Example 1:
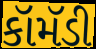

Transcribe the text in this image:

કૉમૅડી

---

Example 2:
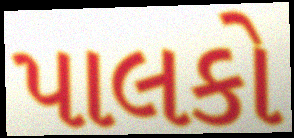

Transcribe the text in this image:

પાલકો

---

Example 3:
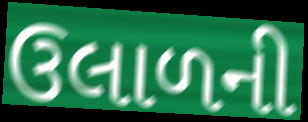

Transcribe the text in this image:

ઉલાળની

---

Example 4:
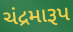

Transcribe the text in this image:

ચંદ્રમારૂપ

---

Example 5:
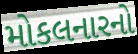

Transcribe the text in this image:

મોકલનારનો